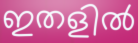
ഇതളിൽ